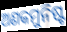
ଅଣକମୁନିଷ୍ଟ